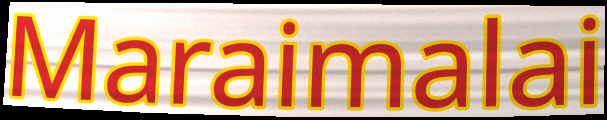
Maraimalai